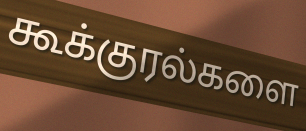
கூக்குரல்களை